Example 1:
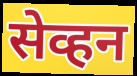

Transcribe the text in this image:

सेव्हन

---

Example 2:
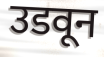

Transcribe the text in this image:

उडवून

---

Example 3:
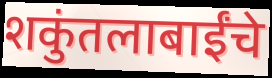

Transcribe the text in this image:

शकुंतलाबाईंचे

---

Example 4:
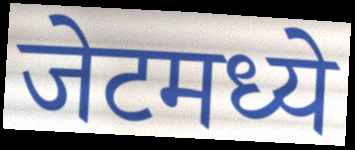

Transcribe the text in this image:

जेटमध्ये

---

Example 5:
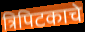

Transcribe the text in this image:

त्रिपिटकाचे